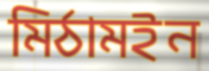
মিঠামইন